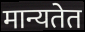
मान्यतेत